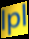
Ipl